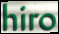
hiro